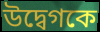
উদ্বেগকে